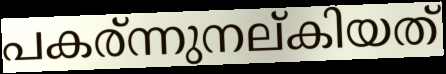
പകര്ന്നുനല്കിയത്